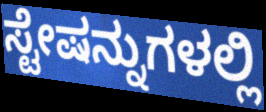
ಸ್ಟೇಷನ್ನುಗಳಲ್ಲಿ